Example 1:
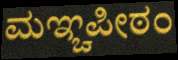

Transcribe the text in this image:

ಮಞ್ಚಪೀಠಂ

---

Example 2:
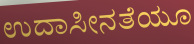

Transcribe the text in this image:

ಉದಾಸೀನತೆಯೂ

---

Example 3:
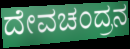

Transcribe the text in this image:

ದೇವಚಂದ್ರನ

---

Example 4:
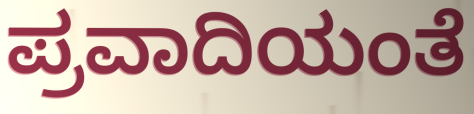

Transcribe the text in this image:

ಪ್ರವಾದಿಯಂತೆ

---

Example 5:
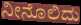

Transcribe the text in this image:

ನೀನೊಲಿದು